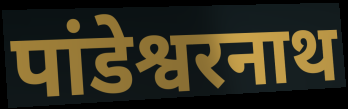
पांडेश्वरनाथ